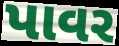
પાવર